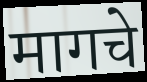
मागचे